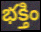
భక్తిం